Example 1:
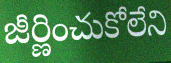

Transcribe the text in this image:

జీర్ణించుకోలేని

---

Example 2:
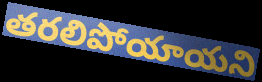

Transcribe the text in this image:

తరలిపోయాయని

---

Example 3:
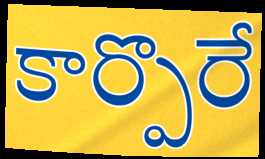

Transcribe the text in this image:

కార్పొరే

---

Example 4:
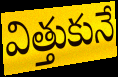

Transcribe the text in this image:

విత్తుకునే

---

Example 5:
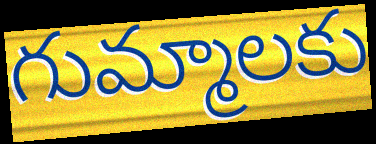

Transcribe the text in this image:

గుమ్మాలకు